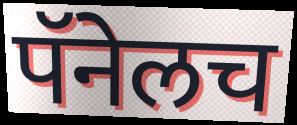
पॅनेलच